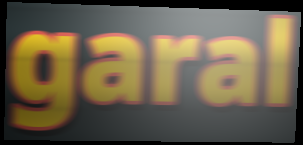
garal